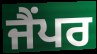
ਜੈਂਪਰ